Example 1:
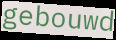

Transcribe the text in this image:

gebouwd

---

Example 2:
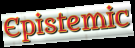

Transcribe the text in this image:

Epistemic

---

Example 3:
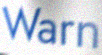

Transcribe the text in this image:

Warn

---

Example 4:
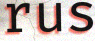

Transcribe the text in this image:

rus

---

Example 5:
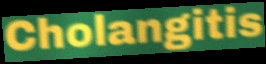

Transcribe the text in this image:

Cholangitis